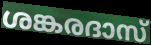
ശങ്കരദാസ്